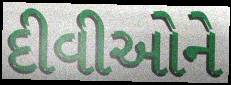
દીવીઓને